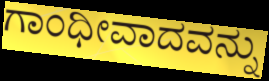
ಗಾಂಧೀವಾದವನ್ನು